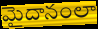
మైదానంలా